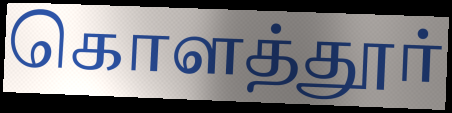
கொளத்தூர்